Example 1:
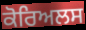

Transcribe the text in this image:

ਕੋਰਿਅਲਸ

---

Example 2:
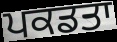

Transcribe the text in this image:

ਪਕਡਤਾ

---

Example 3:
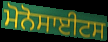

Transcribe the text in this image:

ਮੋਨੋਸਾਈਟਸ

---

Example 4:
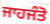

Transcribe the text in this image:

ਜਾਹਜੰਤੋ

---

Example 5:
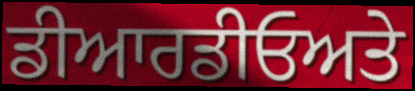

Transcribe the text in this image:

ਡੀਆਰਡੀਓਅਤੇ